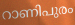
റാണിപുരം